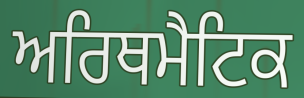
ਅਰਿਥਮੈਟਿਕ